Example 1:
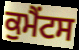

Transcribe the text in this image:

ਕੁਮੈਂਟਸ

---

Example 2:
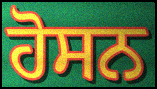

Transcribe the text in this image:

ਹੋਸਨ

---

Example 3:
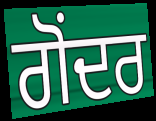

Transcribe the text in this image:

ਗੋਂਦਰ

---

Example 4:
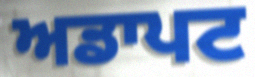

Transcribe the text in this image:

ਅਡਾਪਟ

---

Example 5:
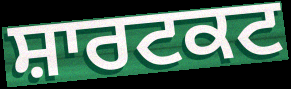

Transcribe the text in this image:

ਸ਼ਾਰਟਕਟ